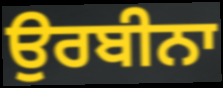
ਉਰਬੀਨਾ